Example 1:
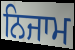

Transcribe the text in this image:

ਨਿਜਾਮ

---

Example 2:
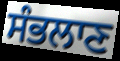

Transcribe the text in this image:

ਸੰਭਲਾਣ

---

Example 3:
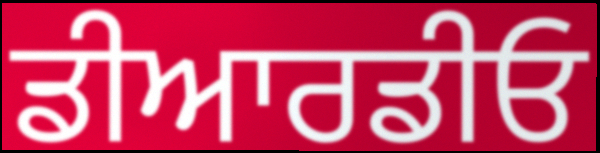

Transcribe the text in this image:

ਡੀਆਰਡੀਓ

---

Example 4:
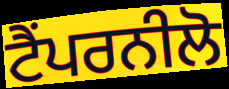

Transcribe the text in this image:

ਟੈਂਪਰਨੀਲੋ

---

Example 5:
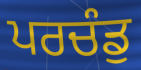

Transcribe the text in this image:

ਪਰਚੰਡੁ